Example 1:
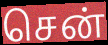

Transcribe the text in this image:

சென்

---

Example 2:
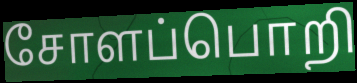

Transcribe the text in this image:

சோளப்பொறி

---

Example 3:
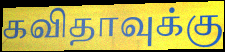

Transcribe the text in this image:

கவிதாவுக்கு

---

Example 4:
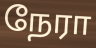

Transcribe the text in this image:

நேரா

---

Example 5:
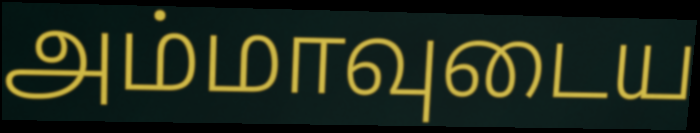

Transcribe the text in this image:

அம்மாவுடைய